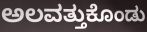
ಅಲವತ್ತುಕೊಂಡು